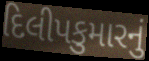
દિલીપકુમારનું